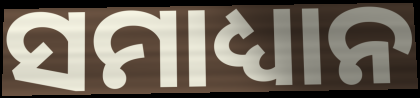
ସମାଧ୍ୟାନ